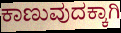
ಕಾಣುವುದಕ್ಕಾಗಿ